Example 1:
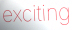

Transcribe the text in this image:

exciting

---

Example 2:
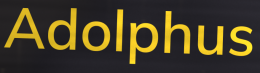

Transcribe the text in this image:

Adolphus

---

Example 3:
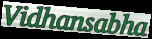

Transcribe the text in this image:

Vidhansabha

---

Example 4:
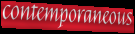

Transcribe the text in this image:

contemporaneous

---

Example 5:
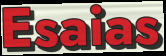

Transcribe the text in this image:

Esaias